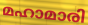
മഹാമാരി